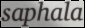
saphala